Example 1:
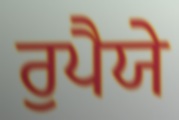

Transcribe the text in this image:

ਰੁਪੈਯੇ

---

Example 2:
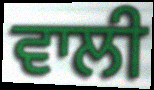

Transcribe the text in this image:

ਵਾਲੀ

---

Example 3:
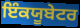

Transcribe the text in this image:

ਇੰਕਯੂਬੇਟਰ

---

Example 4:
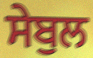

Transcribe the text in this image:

ਸੇਬੁਲ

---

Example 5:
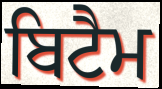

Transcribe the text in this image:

ਬਿਟੈਮ